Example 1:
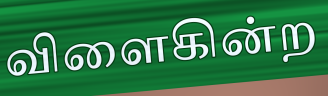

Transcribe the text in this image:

விளைகின்ற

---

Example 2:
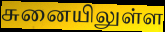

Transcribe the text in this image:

சுனையிலுள்ள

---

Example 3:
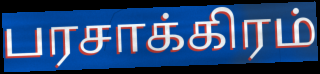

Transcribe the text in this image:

பரசாக்கிரம்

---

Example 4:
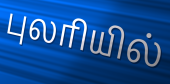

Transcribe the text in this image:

புலரியில்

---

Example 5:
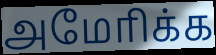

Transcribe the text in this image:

அமேரிக்க